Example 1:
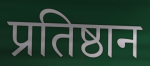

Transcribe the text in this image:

प्रतिष्ठान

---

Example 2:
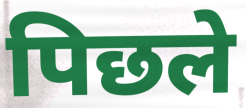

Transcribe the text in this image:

पिछले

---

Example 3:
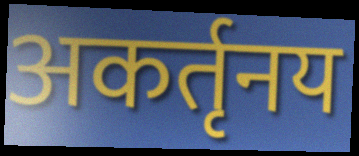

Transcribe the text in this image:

अकर्तृनय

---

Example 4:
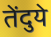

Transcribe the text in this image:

तेंदुये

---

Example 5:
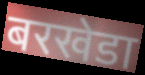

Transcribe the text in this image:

बरखेडा